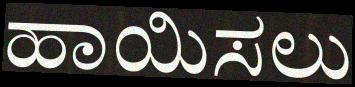
ಹಾಯಿಸಲು